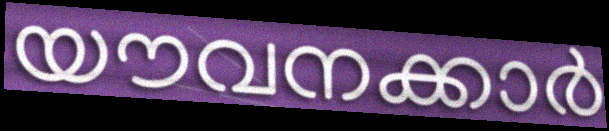
യൗവനക്കാർ